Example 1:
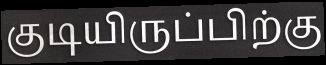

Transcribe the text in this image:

குடியிருப்பிற்கு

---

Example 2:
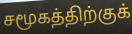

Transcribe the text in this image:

சமூகத்திற்குக்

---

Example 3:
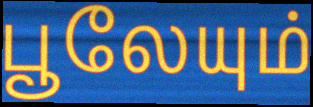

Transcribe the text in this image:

பூலேயும்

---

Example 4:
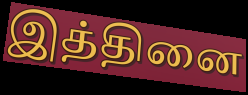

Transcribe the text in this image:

இத்தினை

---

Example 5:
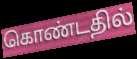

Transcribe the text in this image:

கொண்டதில்